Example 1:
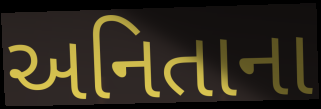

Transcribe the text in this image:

અનિતાના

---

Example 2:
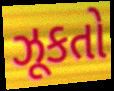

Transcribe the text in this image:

ઝૂકતો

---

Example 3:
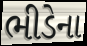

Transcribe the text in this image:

ભીડેના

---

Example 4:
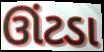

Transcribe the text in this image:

ઊંટડા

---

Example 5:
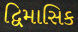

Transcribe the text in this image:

દ્વિમાસિક